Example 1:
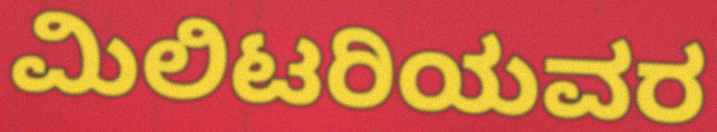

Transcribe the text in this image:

ಮಿಲಿಟರಿಯವರ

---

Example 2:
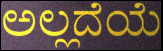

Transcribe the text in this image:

ಅಲ್ಲದೆಯೆ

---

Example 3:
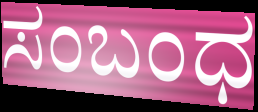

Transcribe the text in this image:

ಸಂಬಂಧ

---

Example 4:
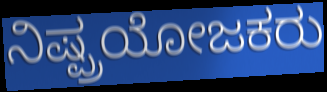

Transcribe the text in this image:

ನಿಷ್ಪ್ರಯೋಜಕರು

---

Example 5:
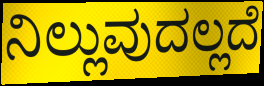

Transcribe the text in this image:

ನಿಲ್ಲುವುದಲ್ಲದೆ